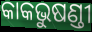
କାକଭୁଷଣ୍ଡୀ